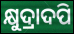
କ୍ଷୁଦ୍ରାଦପି